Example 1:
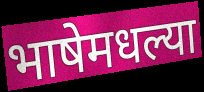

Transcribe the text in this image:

भाषेमधल्या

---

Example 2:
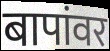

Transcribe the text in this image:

बापांवर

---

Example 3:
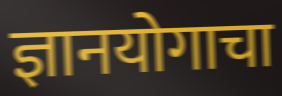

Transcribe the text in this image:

ज्ञानयोगाचा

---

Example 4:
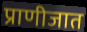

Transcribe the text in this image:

प्राणीजात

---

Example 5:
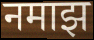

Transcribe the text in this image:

नमाझ